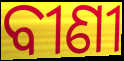
ବୀଣୀ